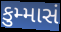
કુમ્માસં